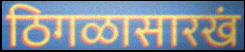
ठिगळासारखं